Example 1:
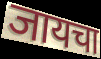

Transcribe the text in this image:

जायचा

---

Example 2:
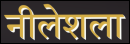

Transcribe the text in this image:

नीलेशला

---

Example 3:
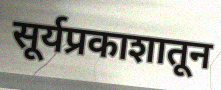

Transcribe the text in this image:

सूर्यप्रकाशातून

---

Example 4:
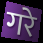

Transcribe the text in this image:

गरे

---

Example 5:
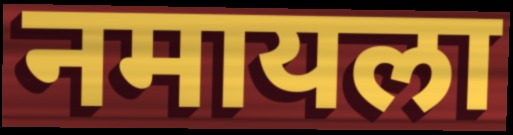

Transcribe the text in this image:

नमायला